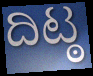
ದಿಟ್ಠ